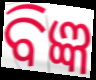
ବିଜ୍ଞ